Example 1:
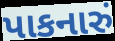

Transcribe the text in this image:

પાકનારું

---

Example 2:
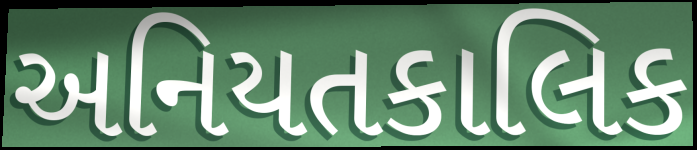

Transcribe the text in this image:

અનિયતકાલિક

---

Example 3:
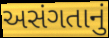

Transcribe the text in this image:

અસંગતાનું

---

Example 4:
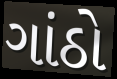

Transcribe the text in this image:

ગાંઠો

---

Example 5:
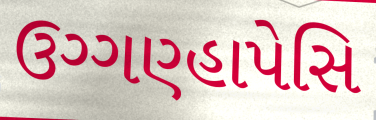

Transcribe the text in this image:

ઉગ્ગણ્હાપેસિ